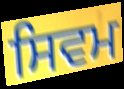
ਸਿਵਮ